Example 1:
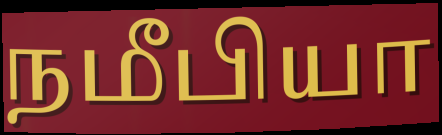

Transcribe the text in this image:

நமீபியா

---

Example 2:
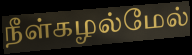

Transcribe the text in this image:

நீள்கழல்மேல்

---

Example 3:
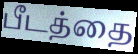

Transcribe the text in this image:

பீடத்தை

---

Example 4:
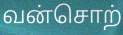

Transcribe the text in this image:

வன்சொற்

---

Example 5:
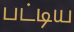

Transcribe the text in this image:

பட்டிய